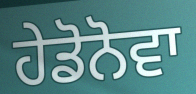
ਹੇਡੋਨੋਵਾ